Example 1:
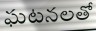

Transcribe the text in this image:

ఘటనలతో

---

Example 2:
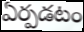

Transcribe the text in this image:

ఏర్పడటం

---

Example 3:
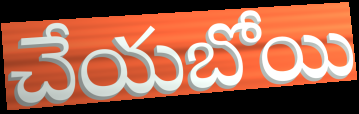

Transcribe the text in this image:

చేయబోయి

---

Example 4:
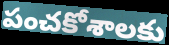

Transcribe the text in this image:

పంచకోశాలకు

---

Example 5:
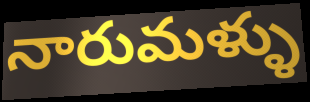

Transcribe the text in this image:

నారుమళ్ళు